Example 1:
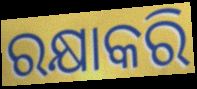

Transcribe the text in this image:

ରକ୍ଷାକରି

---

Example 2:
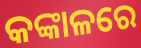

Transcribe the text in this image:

କଙ୍କାଳରେ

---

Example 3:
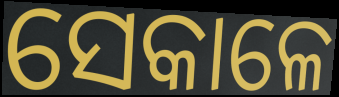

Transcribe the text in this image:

ସେକାଳେ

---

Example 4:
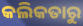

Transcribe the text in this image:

କଲିକତାରୁ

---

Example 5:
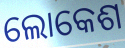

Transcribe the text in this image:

ଲୋକେଶ